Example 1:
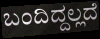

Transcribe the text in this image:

ಬಂದಿದ್ದಲ್ಲದೆ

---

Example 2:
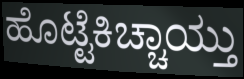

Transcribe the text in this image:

ಹೊಟ್ಟೆಕಿಚ್ಚಾಯ್ತು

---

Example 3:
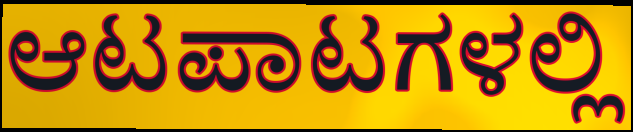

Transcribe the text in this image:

ಆಟಪಾಟಗಳಲ್ಲಿ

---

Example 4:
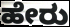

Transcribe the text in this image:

ಹೇರು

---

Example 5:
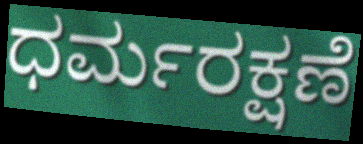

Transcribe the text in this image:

ಧರ್ಮರಕ್ಷಣೆ